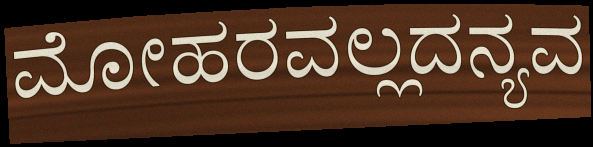
ಮೋಹರವಲ್ಲದನ್ಯವ